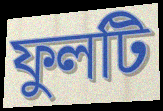
ফুলটি